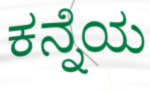
ಕನ್ನೆಯ